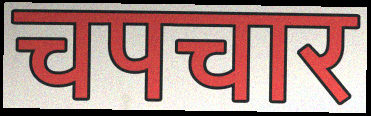
चपचार